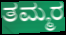
ತಮ್ಮರ